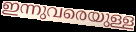
ഇന്നുവരെയുള്ള